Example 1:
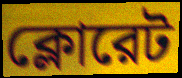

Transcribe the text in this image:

ক্লোরেট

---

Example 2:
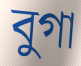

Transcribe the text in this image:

বুগা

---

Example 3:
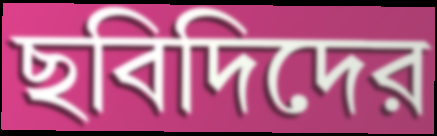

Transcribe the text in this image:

ছবিদিদের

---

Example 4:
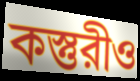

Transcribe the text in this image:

কস্তুরীও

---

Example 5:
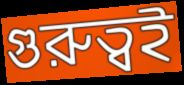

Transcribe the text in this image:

গুরুত্বই